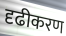
दृढीकरण